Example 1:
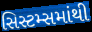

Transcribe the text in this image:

સિસ્ટમ્સમાંથી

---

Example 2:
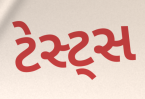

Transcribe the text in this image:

ટેસ્ટ્સ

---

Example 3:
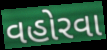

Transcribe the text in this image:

વહોરવા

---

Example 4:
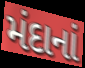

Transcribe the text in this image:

મંદાનાં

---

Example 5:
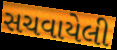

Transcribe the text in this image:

સચવાયેલી